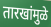
तारखांमुळे